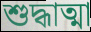
শুদ্ধাত্মা